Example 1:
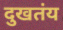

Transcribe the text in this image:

दुखतंय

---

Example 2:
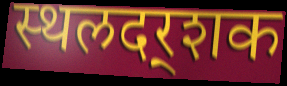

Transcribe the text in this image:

स्थलदर्शक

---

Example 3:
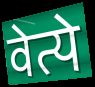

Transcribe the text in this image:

वेत्ये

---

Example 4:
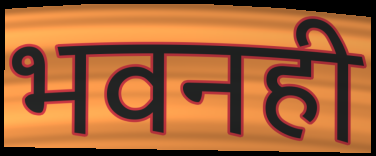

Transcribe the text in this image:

भवनही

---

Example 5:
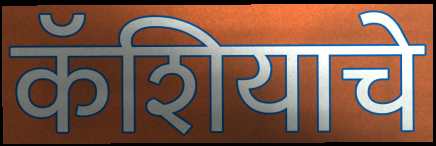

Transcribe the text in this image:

कॅशियाचे